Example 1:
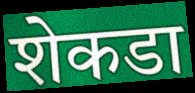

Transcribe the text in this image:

शेकडा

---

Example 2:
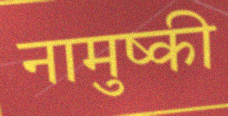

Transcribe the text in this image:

नामुष्की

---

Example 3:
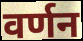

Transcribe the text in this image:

वर्णन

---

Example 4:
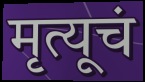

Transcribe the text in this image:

मृत्यूचं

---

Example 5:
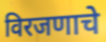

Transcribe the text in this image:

विरजणाचे